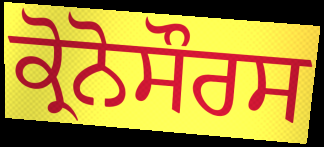
ਕ੍ਰੋਨੋਸੌਰਸ